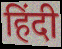
हिंदी